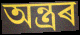
অন্ত্ৰৰ